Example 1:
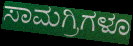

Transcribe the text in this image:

ಸಾಮಗ್ರಿಗಳೂ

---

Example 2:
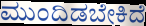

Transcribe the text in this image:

ಮುಂದಿಡಬೇಕಿದೆ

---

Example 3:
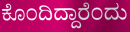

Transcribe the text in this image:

ಕೊಂದಿದ್ದಾರೆಂದು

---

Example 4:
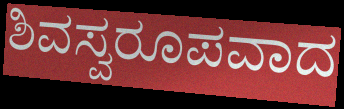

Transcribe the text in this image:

ಶಿವಸ್ವರೂಪವಾದ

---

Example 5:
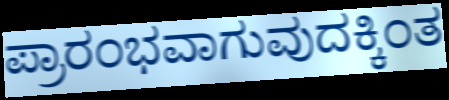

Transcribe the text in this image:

ಪ್ರಾರಂಭವಾಗುವುದಕ್ಕಿಂತ